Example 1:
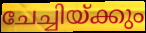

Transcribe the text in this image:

ചേച്ചിയ്ക്കും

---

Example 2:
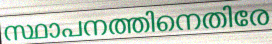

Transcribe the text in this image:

സ്ഥാപനത്തിനെതിരേ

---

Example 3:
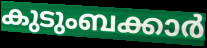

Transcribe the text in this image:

കുടുംബക്കാർ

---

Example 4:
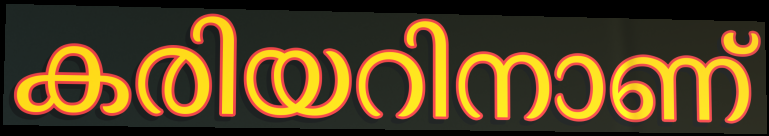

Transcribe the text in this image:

കരിയറിനാണ്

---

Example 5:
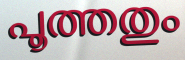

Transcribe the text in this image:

പൂത്തതും